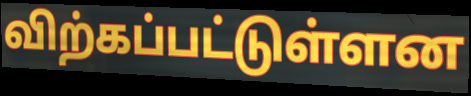
விற்கப்பட்டுள்ளன